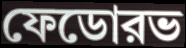
ফেডোরভ